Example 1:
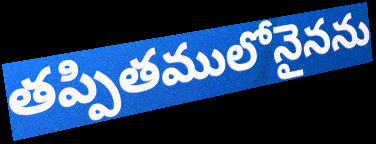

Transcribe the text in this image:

తప్పితములోనైనను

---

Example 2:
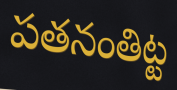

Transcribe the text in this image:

పతనంతిట్ట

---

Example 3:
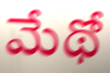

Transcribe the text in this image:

మేథో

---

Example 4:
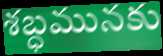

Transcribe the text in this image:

శబ్ధమునకు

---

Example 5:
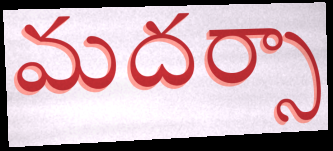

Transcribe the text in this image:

మదర్సా